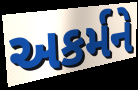
અકર્મને